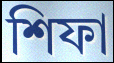
শিফা